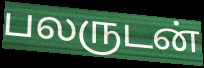
பலருடன்